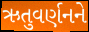
ઋતુવર્ણનને